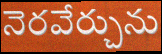
నెరవేర్చును